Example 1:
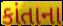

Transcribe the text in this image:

કાંતાના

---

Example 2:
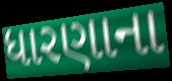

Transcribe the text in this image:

ધારણાના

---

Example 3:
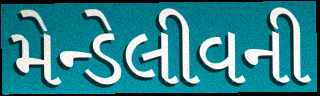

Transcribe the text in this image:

મેન્ડેલીવની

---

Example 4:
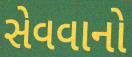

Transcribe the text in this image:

સેવવાનો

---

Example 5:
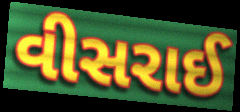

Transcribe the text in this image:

વીસરાઈ